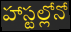
హాస్టల్లోనో